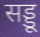
सड्डू